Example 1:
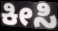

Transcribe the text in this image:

ಕೀಸಿ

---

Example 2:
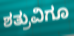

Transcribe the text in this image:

ಶತ್ರುವಿಗೂ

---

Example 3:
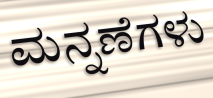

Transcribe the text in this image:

ಮನ್ನಣೆಗಳು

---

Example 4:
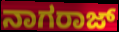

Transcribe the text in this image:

ನಾಗರಾಜ್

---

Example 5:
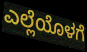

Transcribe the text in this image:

ಎಲ್ಲೆಯೊಳಗೆ